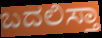
ಬದಲಿಸ್ತಾ